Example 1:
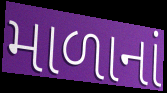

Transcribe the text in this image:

માળાનાં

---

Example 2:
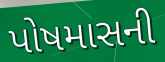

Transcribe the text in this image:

પોષમાસની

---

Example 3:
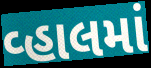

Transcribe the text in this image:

વ્હાલમાં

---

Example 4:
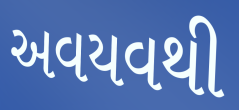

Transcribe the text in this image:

અવયવથી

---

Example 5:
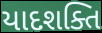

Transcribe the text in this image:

યાદશક્તિ